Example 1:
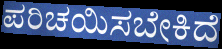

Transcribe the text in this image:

ಪರಿಚಯಿಸಬೇಕಿದೆ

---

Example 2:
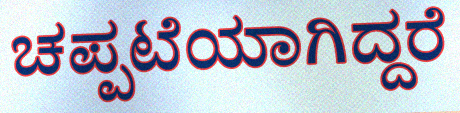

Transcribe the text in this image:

ಚಪ್ಪಟೆಯಾಗಿದ್ದರೆ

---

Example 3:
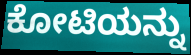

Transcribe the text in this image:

ಕೋಟಿಯನ್ನು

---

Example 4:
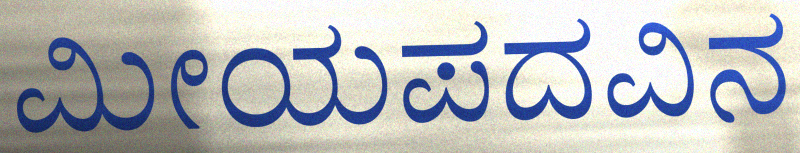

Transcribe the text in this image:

ಮೀಯಪದವಿನ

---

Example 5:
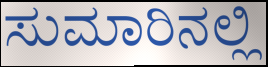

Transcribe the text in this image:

ಸುಮಾರಿನಲ್ಲಿ